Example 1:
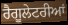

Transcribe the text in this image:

ਰੈਗੂਲੇਟਰੀਆਂ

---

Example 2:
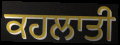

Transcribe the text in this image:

ਕਹਲਾਤੀ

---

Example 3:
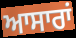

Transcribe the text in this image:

ਆਸਾਰਾਂ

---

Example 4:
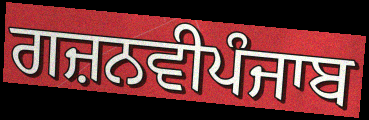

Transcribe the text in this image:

ਗਜ਼ਨਵੀਪੰਜਾਬ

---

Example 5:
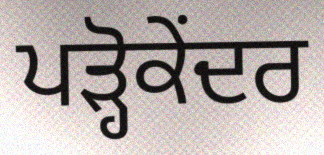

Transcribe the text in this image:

ਪੜ੍ਹੋਕੇਂਦਰ